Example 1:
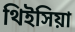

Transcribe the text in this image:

থিইসিয়া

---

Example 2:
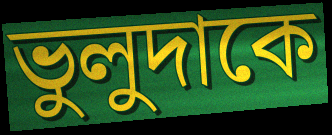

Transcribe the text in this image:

ভুলুদাকে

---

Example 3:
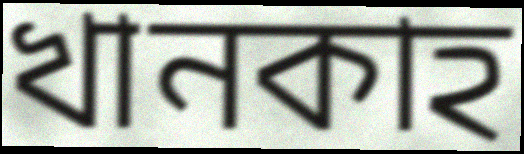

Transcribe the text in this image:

খানকাহ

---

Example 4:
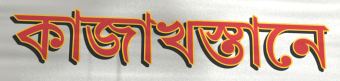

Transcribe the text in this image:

কাজাখস্তানে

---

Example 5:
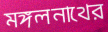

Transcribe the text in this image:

মঙ্গলনাথের